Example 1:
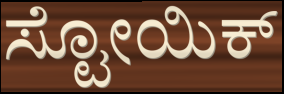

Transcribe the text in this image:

ಸ್ಟೋಯಿಕ್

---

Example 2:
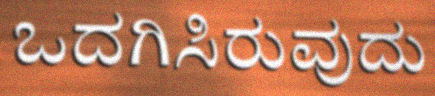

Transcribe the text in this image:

ಒದಗಿಸಿರುವುದು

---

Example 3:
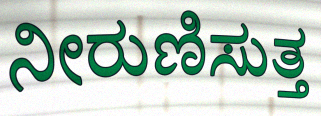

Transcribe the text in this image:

ನೀರುಣಿಸುತ್ತ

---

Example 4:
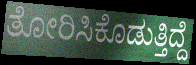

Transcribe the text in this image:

ತೋರಿಸಿಕೊಡುತ್ತಿದ್ದೆ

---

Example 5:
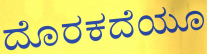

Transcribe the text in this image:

ದೊರಕದೆಯೂ